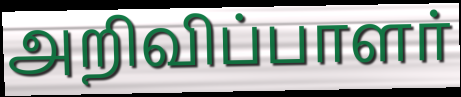
அறிவிப்பாளர்